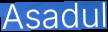
Asadul